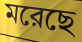
মরেছে